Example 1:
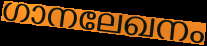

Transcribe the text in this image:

ഗാനലേഖനം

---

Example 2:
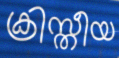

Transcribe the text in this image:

ക്രിസ്തീയ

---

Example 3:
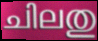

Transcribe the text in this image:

ചിലതു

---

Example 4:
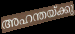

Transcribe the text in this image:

അഹന്തയ്ക്കു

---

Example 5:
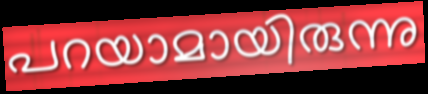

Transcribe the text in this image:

പറയാമായിരുന്നു